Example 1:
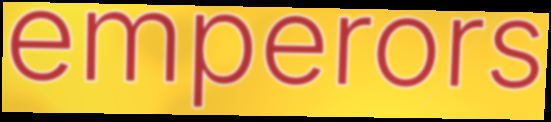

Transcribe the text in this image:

emperors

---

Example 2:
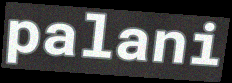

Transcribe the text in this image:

palani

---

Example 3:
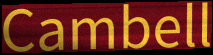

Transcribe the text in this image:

Cambell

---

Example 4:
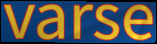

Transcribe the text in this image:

varse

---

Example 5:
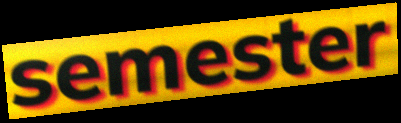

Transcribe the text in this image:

semester